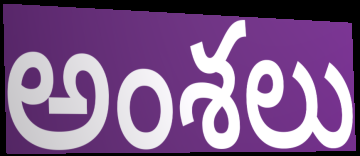
అంశలు